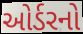
ઓર્ડરનો